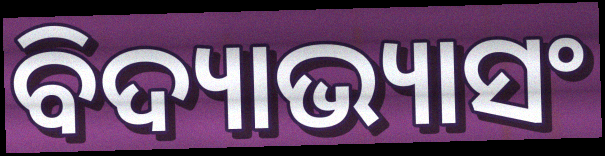
ବିଦ୍ୟାଭ୍ୟାସଂ